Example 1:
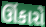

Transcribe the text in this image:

ઊંકારો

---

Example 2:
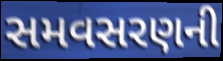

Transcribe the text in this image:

સમવસરણની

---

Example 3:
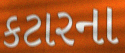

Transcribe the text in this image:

કટારના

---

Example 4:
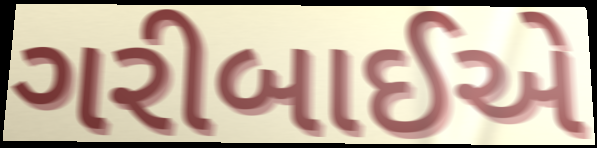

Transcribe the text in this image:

ગરીબાઈએ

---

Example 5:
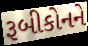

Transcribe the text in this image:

રૂબીકોનને